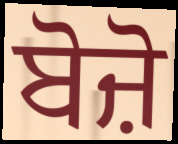
ਬੋਜ਼ੋ